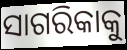
ସାଗରିକାକୁ